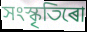
সংস্কৃতিৰো